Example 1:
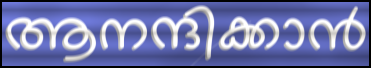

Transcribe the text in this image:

ആനന്ദിക്കാൻ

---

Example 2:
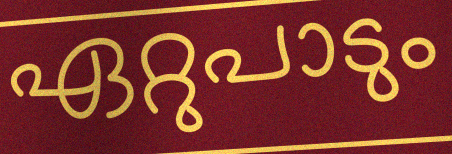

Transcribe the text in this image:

ഏറ്റുപാടും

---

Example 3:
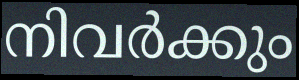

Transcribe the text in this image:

നിവർക്കും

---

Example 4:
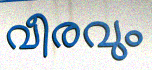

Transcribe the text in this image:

വീരവും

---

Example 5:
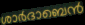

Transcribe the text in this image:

ശാർദാബെൻ